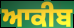
ਆਕੀਬ